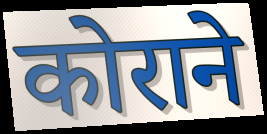
कोराने